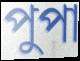
পুপা